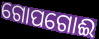
ଗୋପଗୋଈ